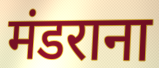
मंडराना